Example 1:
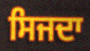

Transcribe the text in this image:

ਸਿਜਦਾ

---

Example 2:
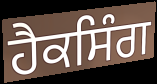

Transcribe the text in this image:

ਹੈਕਸਿੰਗ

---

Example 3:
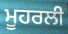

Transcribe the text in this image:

ਮੂਹਰਲੀ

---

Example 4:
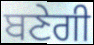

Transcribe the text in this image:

ਬਣੇਗੀ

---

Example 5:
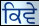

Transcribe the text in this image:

ਕਿਵੇ